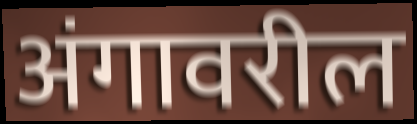
अंगावरील